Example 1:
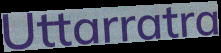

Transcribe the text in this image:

Uttarratra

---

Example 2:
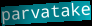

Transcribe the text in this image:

parvatake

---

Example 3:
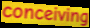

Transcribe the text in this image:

conceiving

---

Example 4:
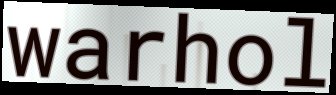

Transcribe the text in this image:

warhol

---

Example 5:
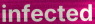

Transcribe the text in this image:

infected